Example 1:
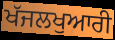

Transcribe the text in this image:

ਖੱਜਲਖੁਆਰੀ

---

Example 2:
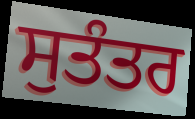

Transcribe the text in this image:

ਸੁਤੰਤਰ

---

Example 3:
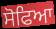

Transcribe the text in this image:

ਸੋਫਿਆ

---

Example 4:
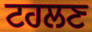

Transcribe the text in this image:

ਟਹਲਣ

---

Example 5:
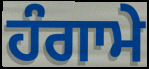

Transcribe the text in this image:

ਹੰਗਾਮੇ